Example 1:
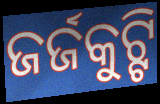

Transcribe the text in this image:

ଜର୍ଜକୁଟ୍ଟି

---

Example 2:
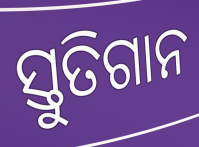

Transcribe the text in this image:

ସ୍ତୁତିଗାନ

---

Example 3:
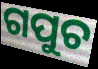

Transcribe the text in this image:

ଗପୁଚ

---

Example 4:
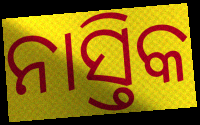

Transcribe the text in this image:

ନାସ୍ତିକ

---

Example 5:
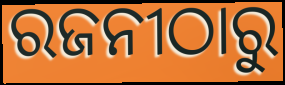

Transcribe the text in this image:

ରଜନୀଠାରୁ